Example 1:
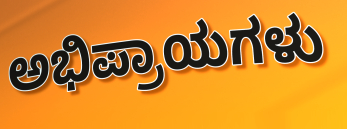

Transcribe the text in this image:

ಅಭಿಪ್ರಾಯಗಳು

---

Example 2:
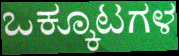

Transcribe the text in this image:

ಒಕ್ಕೂಟಗಳ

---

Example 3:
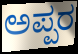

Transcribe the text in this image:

ಅಪ್ಪರ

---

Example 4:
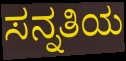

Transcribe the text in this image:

ಸನ್ನತಿಯ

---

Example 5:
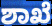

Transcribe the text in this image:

ಶಾಖೆ